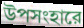
উপসংহারে